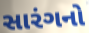
સારંગનો